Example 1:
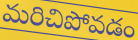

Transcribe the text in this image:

మరిచిపోవడం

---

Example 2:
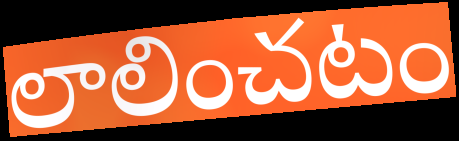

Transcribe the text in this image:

లాలించటం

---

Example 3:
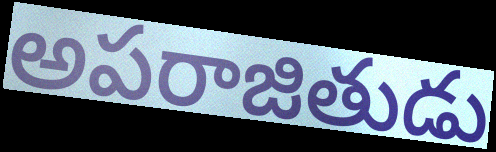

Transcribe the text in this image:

అపరాజితుడు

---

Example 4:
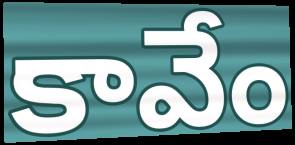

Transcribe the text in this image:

కావేం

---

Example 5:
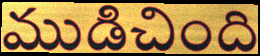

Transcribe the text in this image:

ముడిచింది